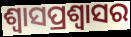
ଶ୍ଵାସପ୍ରଶ୍ଵାସର